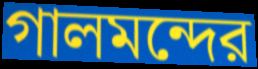
গালমন্দের